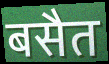
बसैत